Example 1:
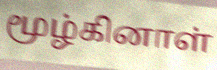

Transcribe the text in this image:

மூழ்கினாள்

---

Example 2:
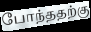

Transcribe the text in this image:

போந்ததற்கு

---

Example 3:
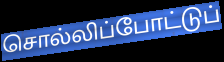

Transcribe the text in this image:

சொல்லிப்போட்டுப்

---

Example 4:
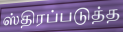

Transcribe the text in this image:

ஸ்திரப்படுத்த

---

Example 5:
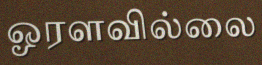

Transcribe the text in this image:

ஓரளவில்லை